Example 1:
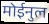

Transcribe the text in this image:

मोईनुल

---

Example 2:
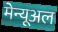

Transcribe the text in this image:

मेन्यूअल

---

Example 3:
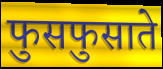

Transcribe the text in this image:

फुसफुसाते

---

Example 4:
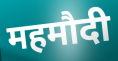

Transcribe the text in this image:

महमौदी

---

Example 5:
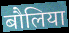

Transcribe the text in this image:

बौलिया